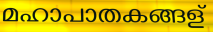
മഹാപാതകങ്ങള്